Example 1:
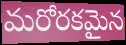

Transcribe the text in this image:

మరోరకమైన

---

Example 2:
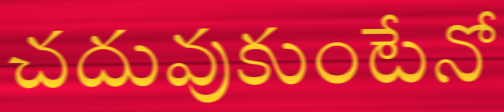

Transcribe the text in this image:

చదువుకుంటేనో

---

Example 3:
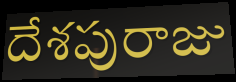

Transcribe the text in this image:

దేశపురాజు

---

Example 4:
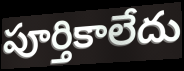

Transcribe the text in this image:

పూర్తికాలేదు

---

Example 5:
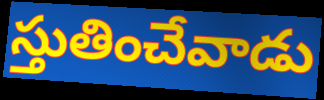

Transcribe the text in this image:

స్తుతించేవాడు